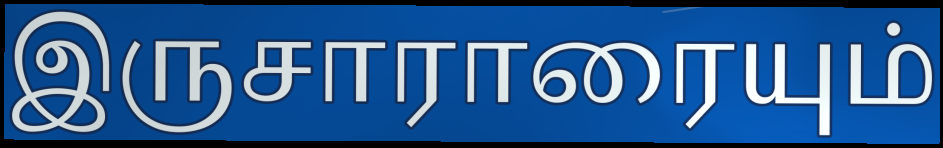
இருசாராரையும்